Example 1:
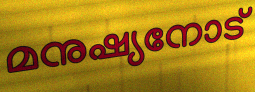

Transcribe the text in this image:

മനുഷ്യനോട്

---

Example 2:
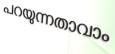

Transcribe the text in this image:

പറയുന്നതാവാം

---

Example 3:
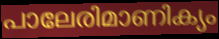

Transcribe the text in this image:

പാലേരിമാണിക്യം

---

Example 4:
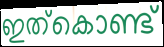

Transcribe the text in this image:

ഇത്കൊണ്ട്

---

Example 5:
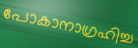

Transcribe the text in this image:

പോകാനാഗ്രഹിച്ച